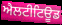
ਐਲਟੀਟਿਊਡ